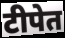
टीपेत